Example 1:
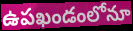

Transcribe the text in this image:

ఉపఖండంలోనూ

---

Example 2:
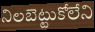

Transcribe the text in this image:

నిలబెట్టుకోలేని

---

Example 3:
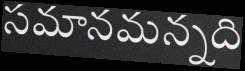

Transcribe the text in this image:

సమానమన్నది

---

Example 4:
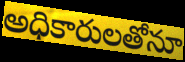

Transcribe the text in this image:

అధికారులతోనూ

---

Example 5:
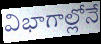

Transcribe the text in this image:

విభాగాల్లోనే